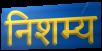
निशम्य